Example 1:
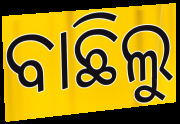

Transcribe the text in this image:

ବାଛିଲୁ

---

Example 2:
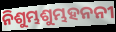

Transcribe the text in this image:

ନିଶୁମ୍ଭଶୁମ୍ଭହନନୀ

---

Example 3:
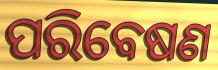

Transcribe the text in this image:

ପରିବେଷଣ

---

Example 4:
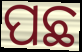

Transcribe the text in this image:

ପଛ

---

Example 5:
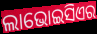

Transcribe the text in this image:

ଲାଭୋଇସିଏର